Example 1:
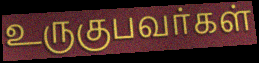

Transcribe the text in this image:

உருகுபவர்கள்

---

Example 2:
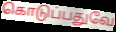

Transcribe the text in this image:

கொடுப்பதுவே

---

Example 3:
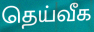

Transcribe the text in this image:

தெய்வீக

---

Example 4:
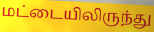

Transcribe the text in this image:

மட்டையிலிருந்து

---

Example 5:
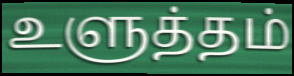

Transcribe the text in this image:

உளுத்தம்